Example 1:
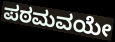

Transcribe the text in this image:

ಪಠಮವಯೇ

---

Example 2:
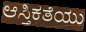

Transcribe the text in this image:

ಆಸ್ತಿಕತೆಯು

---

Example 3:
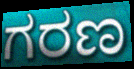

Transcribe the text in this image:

ಗರಣ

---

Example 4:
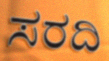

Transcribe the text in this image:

ಸರದಿ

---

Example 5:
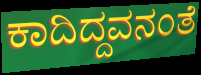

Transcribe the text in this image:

ಕಾದಿದ್ದವನಂತೆ